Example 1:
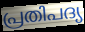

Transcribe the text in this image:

പ്രതിപദ്യ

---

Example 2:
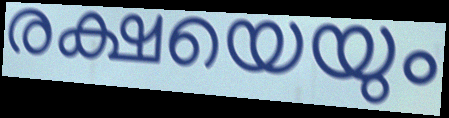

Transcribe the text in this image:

രക്ഷയെയും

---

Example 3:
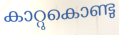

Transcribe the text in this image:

കാറ്റുകൊണ്ടു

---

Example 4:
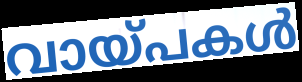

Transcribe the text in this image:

വായ്പകൾ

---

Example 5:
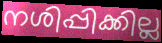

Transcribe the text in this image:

നശിപ്പിക്കില്ല